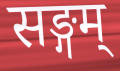
सङ्गम्